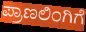
ಪ್ರಾಣಲಿಂಗಿಗೆ